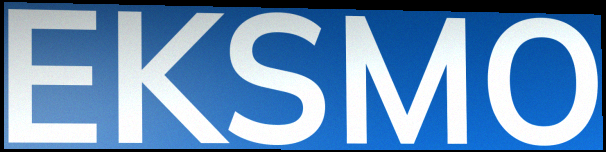
EKSMO